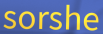
sorshe